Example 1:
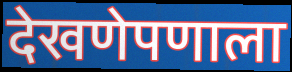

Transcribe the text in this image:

देखणेपणाला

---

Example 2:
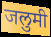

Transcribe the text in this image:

जलुमी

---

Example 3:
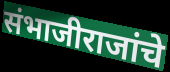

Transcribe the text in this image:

संभाजीराजांचे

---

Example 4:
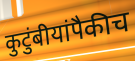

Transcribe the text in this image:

कुटुंबीयांपैकीच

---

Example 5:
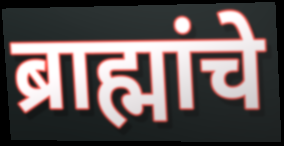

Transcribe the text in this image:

ब्राह्मांचे